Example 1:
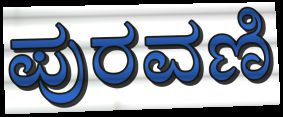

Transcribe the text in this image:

ಪುರವಣಿ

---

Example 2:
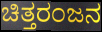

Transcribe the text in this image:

ಚಿತ್ತರಂಜನ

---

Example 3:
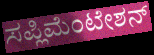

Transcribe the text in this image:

ಸಪ್ಲಿಮೆಂಟೇಶನ್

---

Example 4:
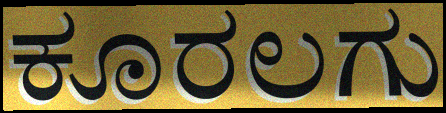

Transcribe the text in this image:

ಕೂರಲಗು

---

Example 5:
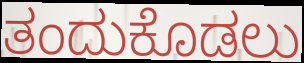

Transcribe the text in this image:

ತಂದುಕೊಡಲು